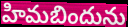
హిమబిందును